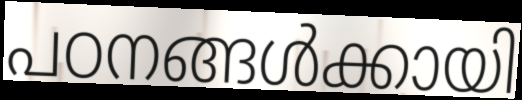
പഠനങ്ങൾക്കായി